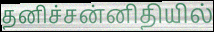
தனிச்சன்னிதியில்